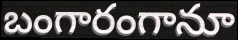
బంగారంగానూ